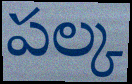
పల్క